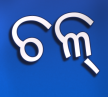
ଚଳ୍